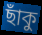
ছাঁকু